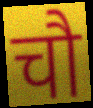
चौ